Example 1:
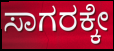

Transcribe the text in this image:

ಸಾಗರಕ್ಕೇ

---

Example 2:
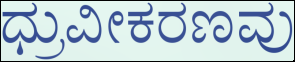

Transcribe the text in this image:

ಧ್ರುವೀಕರಣವು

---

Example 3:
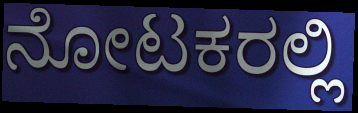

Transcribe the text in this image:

ನೋಟಕರಲ್ಲಿ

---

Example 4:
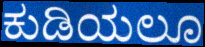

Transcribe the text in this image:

ಕುಡಿಯಲೂ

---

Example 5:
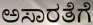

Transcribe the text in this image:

ಅಸಾರತೆಗೆ